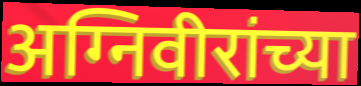
अग्निवीरांच्या